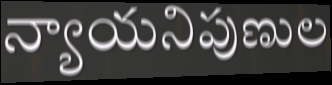
న్యాయనిపుణుల